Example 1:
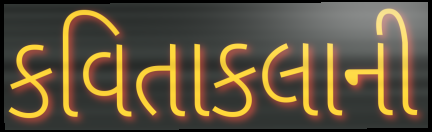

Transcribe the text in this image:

કવિતાકલાની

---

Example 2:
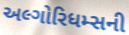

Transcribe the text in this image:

અલ્ગોરિધમ્સની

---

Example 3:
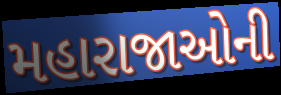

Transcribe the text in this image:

મહારાજાઓની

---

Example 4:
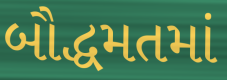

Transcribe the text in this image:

બૌદ્ધમતમાં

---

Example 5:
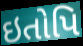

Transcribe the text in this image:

ઇતોપિ